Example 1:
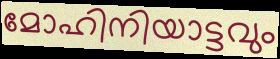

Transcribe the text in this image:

മോഹിനിയാട്ടവും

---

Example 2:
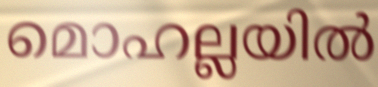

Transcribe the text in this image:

മൊഹല്ലയിൽ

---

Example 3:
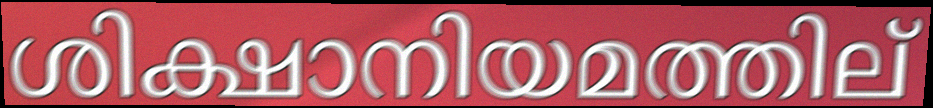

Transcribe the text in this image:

ശിക്ഷാനിയമത്തില്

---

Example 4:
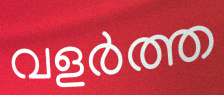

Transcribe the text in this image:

വളർത്ത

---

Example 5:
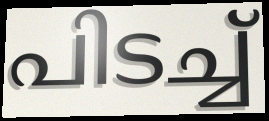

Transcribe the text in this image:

പിടച്ച്